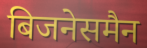
बिजनेसमैन